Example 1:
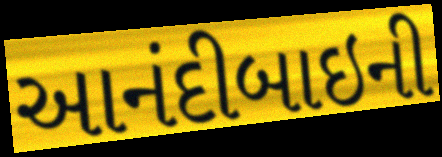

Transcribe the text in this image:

આનંદીબાઇની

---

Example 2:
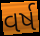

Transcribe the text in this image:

વર્ષ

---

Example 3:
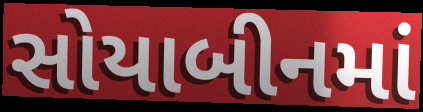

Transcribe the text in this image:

સોયાબીનમાં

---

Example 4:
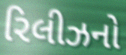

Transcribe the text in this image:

રિલીઝનો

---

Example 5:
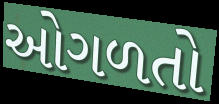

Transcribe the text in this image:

ઓગળતો